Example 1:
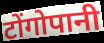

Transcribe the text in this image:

टोंगोपानी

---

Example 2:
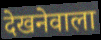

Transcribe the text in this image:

देखनेवाला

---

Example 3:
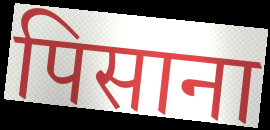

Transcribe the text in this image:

पिसाना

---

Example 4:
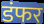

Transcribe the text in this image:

डंफर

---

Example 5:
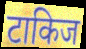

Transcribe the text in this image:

टाकिज